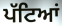
ਪੱਟਿਆਂ